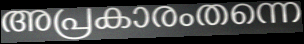
അപ്രകാരംതന്നെ